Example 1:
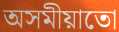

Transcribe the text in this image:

অসমীয়াতো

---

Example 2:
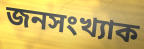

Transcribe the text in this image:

জনসংখ্যাক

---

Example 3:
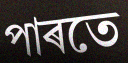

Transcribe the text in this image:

পাৰতে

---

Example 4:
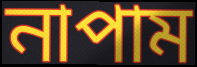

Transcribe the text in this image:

নাপাম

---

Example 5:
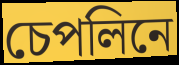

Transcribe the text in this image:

চেপলিনে